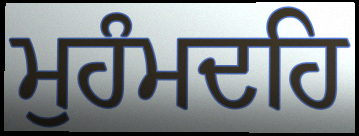
ਮੁਹੰਮਦਹਿ